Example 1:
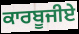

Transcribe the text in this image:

ਕਾਰਬੂਜੀਏ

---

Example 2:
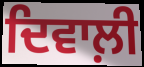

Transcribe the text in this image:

ਦਿਵਾਲ਼ੀ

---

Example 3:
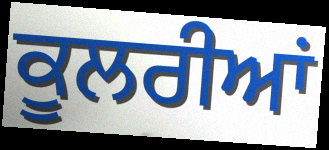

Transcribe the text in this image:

ਕੂਲਰੀਆਂ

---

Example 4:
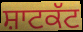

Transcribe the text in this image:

ਸ਼ਾਟਕੱਟ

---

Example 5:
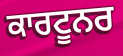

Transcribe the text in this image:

ਕਾਰਟੂਨਰ